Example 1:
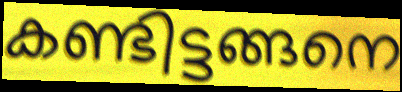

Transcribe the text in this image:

കണ്ടിട്ടങ്ങനെ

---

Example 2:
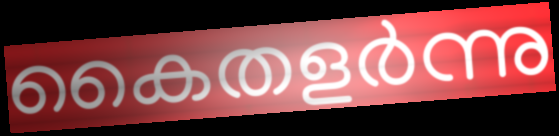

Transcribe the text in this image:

കൈതളർന്നു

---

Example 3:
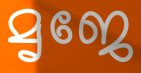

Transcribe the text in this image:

മൃജേ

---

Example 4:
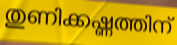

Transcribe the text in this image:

തുണിക്കഷ്ണത്തിന്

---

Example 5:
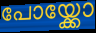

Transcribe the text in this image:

പോയ്ക്കോ